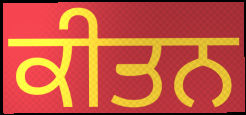
ਕੀਤਨ